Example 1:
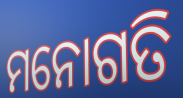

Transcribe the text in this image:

ମନୋଗତି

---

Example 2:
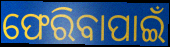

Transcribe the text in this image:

ଫେରିବାପାଇଁ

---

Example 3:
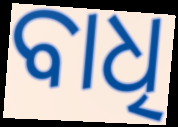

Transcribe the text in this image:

ବାଧି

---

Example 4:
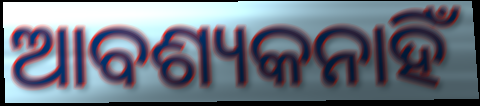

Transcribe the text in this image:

ଆବଶ୍ୟକନାହିଁ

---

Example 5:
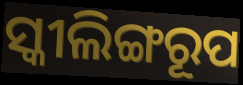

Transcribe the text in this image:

ସ୍କୀଲିଙ୍ଗରୂପ